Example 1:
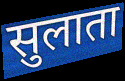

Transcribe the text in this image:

सुलाता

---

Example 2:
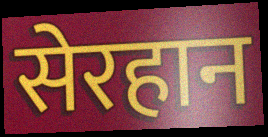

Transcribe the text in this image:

सेरहान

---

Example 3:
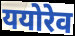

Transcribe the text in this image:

ययोरेव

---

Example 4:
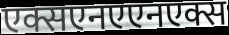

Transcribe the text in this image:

एक्सएनएएनएक्स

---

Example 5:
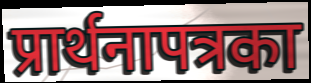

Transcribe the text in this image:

प्रार्थनापत्रका